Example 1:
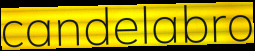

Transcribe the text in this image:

candelabro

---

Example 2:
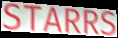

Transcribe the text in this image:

STARRS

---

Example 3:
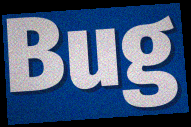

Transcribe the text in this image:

Bug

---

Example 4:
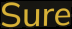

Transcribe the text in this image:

Sure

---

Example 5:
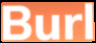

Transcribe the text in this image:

Burl